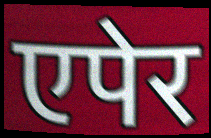
एपेर